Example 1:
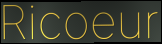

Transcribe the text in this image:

Ricoeur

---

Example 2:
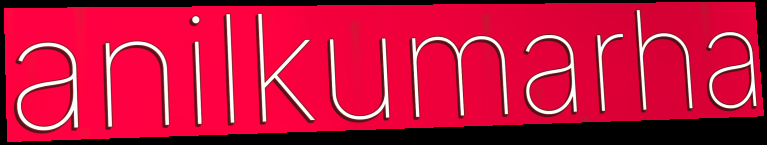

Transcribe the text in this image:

anilkumarha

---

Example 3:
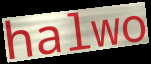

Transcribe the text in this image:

halwo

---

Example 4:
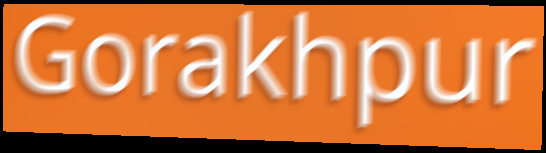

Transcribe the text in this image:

Gorakhpur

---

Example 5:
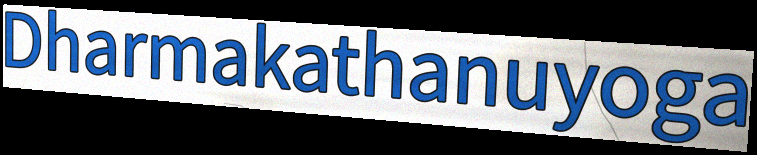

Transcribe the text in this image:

Dharmakathanuyoga